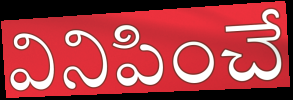
వినిపించే